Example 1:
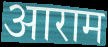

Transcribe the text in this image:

आराम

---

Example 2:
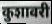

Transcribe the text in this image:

कुशावरी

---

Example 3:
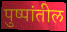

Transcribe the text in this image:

पुष्पांतील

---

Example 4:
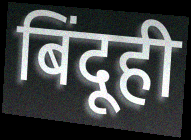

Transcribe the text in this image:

बिंदूही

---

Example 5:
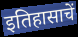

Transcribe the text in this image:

इतिहासाचें